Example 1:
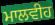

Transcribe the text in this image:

ਮਾਲਵੀਹ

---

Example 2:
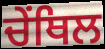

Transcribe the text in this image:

ਚੇਂਥਿਲ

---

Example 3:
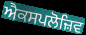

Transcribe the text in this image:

ਐਕਸਪਲੋਜ਼ਿਵ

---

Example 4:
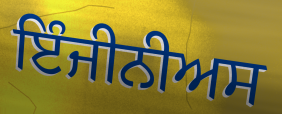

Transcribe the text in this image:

ਇੰਜੀਨੀਅਸ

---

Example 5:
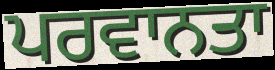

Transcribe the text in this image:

ਪਰਵਾਨਤਾ